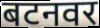
बटनवर